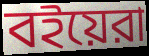
বইয়েরা